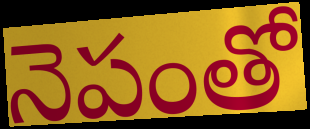
నెపంతో